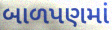
બાળપણમાં